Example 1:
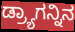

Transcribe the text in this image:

ಡ್ರ್ಯಾಗನ್ನಿನ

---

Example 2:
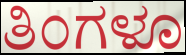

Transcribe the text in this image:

ತಿಂಗಳೂ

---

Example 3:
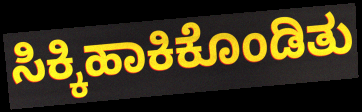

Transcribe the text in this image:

ಸಿಕ್ಕಿಹಾಕಿಕೊಂಡಿತು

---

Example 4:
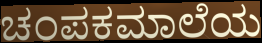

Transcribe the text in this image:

ಚಂಪಕಮಾಲೆಯ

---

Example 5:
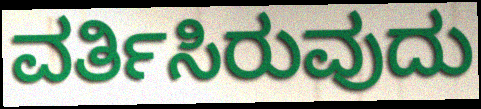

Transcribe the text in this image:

ವರ್ತಿಸಿರುವುದು